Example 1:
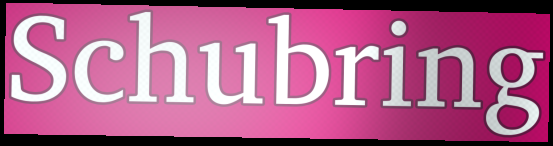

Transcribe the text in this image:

Schubring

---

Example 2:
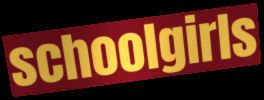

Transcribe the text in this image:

schoolgirls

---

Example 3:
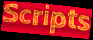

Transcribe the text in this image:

Scripts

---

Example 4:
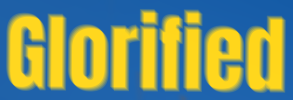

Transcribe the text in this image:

Glorified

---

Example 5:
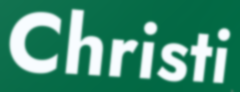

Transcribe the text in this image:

Christi